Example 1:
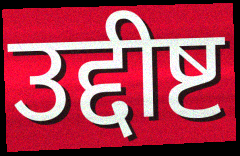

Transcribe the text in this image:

उद्दीष्ट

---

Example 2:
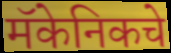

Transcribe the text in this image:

मॅकेनिकचे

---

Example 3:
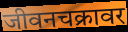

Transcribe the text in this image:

जीवनचक्रावर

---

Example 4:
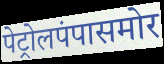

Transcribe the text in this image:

पेट्रोलपंपासमोर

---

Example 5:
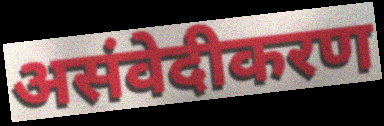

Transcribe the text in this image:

असंवेदीकरण